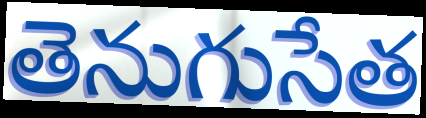
తెనుగుసేత